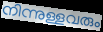
നിന്നുള്ളവരും